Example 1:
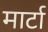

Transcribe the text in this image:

मार्टा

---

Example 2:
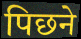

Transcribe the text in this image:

पिछने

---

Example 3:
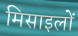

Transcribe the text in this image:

मिसाइलों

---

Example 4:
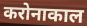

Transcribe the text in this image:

करोनाकाल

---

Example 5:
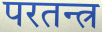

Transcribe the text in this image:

परतन्त्र